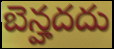
బెన్హదదు